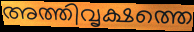
അത്തിവൃക്ഷത്തെ